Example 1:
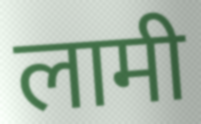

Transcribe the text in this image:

लामी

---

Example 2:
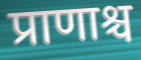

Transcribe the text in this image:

प्राणाश्च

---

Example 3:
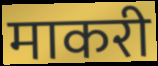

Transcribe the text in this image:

माकरी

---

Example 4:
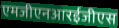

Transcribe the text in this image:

एमजीएनआरईजीएस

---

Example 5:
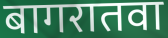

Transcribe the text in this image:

बागरातवा